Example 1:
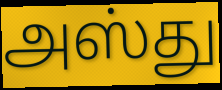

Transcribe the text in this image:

அஸ்து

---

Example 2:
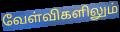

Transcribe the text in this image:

வேள்விகளிலும்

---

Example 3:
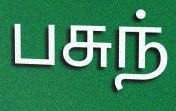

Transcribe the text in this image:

பசுந்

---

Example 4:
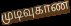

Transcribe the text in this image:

முடிவுகாண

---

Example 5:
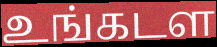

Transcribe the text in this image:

உங்கடள